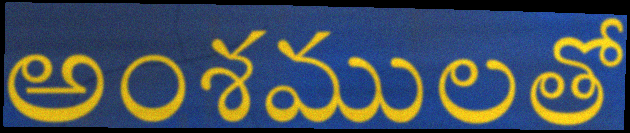
అంశములతో